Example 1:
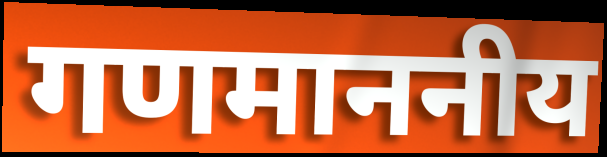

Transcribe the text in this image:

गणमाननीय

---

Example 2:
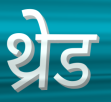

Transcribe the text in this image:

थ्रेड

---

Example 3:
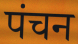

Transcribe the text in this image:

पंचन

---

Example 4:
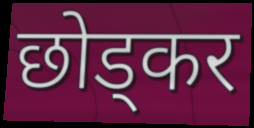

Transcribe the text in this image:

छोड्कर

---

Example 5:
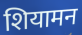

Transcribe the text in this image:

शियामन